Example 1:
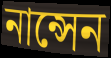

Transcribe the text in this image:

নান্সেন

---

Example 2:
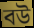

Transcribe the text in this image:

বউ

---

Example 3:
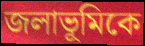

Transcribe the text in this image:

জলাভূমিকে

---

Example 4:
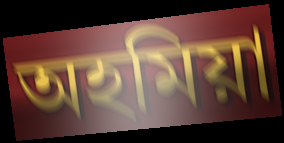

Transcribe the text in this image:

অহমিয়া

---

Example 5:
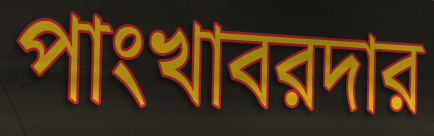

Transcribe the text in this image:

পাংখাবরদার